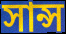
সান্স